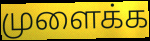
முளைக்க